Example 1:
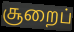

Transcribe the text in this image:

சூறைப்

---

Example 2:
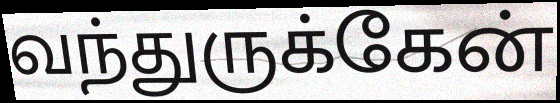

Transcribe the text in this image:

வந்துருக்கேன்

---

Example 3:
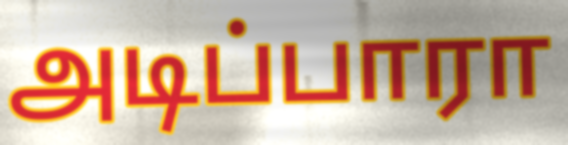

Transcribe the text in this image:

அடிப்பாரா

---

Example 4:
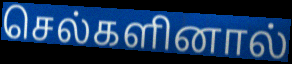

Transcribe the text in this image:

செல்களினால்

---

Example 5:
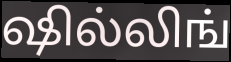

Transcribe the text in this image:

ஷில்லிங்